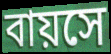
বায়সে